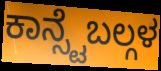
ಕಾನ್ಸ್ಟೆಬಲ್ಗಳ